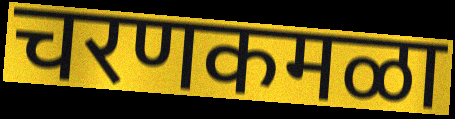
चरणकमळा